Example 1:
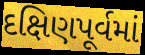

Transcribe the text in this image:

દક્ષિણપૂર્વમાં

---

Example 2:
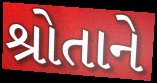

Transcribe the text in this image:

શ્રોતાને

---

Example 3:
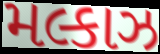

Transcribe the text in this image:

મલ્કાઝ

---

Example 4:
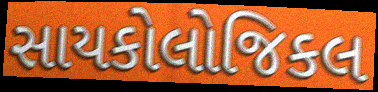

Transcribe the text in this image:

સાયકોલોજિકલ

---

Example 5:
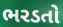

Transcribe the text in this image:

ભરડતો